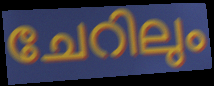
ചേറിലും